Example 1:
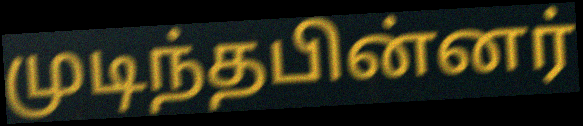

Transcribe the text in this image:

முடிந்தபின்னர்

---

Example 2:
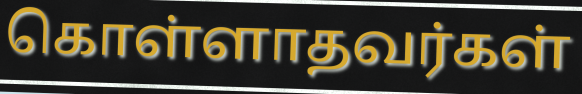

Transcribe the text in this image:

கொள்ளாதவர்கள்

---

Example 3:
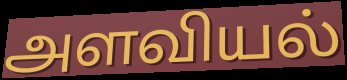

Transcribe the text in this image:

அளவியல்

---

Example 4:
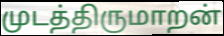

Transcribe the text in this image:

முடத்திருமாறன்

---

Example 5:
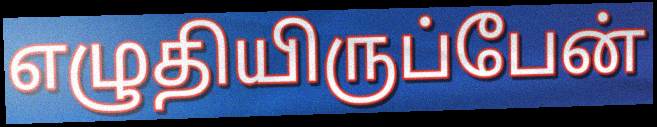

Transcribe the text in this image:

எழுதியிருப்பேன்